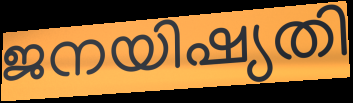
ജനയിഷ്യതി